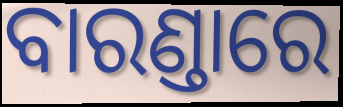
ବାରଣ୍ଡାରେ